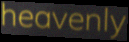
heavenly